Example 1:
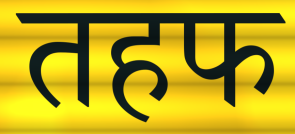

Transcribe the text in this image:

तहफ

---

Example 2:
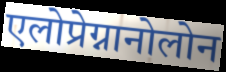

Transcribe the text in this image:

एलोप्रेग्नानोलोन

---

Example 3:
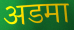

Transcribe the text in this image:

अडमा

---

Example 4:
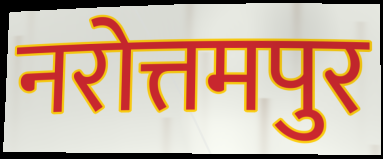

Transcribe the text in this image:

नरोत्तमपुर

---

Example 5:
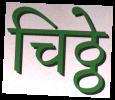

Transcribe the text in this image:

चिठ्ठे